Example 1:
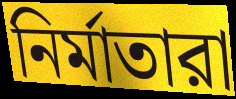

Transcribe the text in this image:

নির্মাতারা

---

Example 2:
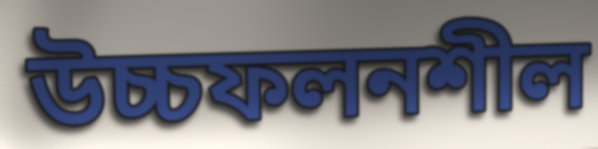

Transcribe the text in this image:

উচ্চফলনশীল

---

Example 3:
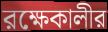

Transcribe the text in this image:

রক্ষেকালীর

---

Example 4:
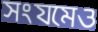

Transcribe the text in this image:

সংযমেও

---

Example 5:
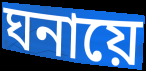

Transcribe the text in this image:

ঘনায়ে